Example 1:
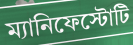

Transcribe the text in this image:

ম্যানিফেস্টোটি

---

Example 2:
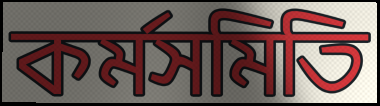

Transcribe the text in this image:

কর্মসমিতি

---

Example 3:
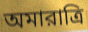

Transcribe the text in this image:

অমারাত্রি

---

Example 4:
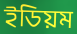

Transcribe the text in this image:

ইডিয়ম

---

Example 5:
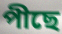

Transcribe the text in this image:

পীছে